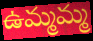
ఉమ్మమ్మ